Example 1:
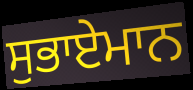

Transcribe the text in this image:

ਸੁਭਾਏਮਾਨ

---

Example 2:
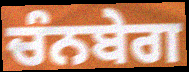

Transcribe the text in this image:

ਚੰਨਬੇਗ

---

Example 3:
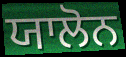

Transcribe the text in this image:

ਯਾਲੋਨ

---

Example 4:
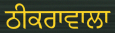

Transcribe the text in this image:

ਠੀਕਰਾਵਾਲਾ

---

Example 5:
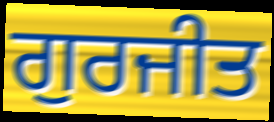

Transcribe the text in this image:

ਗੁਰਜੀਤ